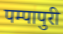
पम्पापुरी